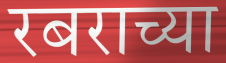
रबराच्या